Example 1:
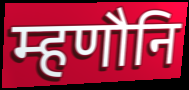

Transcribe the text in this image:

म्हणौनि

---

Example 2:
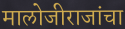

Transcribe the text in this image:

मालोजीराजांचा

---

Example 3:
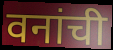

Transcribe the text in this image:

वनांची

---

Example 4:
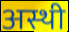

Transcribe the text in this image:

अस्थी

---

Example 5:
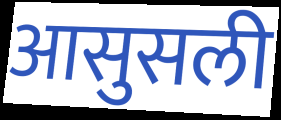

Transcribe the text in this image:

आसुसली